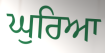
ਘੁਰਿਆ